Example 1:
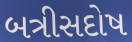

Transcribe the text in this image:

બત્રીસદોષ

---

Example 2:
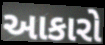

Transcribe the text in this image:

આકારો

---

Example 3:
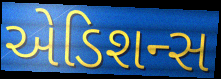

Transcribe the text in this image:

એડિશન્સ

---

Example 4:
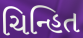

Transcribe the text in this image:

ચિન્હિત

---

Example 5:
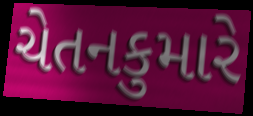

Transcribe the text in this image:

ચેતનકુમારે